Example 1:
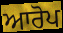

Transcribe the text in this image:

ਆਰੋਪ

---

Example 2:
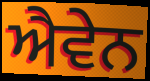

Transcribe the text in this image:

ਐਵੇਨ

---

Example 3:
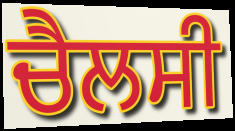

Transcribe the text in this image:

ਚੈਲਸੀ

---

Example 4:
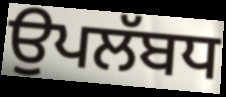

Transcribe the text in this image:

ਉਪਲੱਬਧ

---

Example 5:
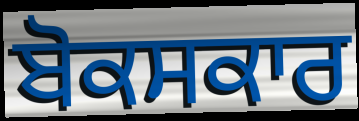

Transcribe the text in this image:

ਬੋਕਸਕਾਰ